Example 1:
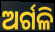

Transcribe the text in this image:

ଅର୍ଗଳି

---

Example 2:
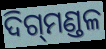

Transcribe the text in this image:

ଦିଗ୍‍ମଣ୍ଡଳ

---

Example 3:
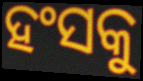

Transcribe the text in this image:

ହଂସକୁ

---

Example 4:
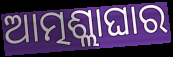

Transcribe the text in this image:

ଆତ୍ମଶ୍ଲାଘାର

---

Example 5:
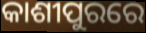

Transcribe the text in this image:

କାଶୀପୁରରେ